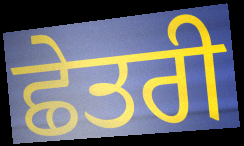
ਛੇਤਰੀ